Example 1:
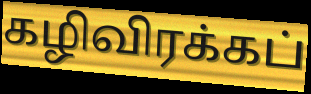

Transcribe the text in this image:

கழிவிரக்கப்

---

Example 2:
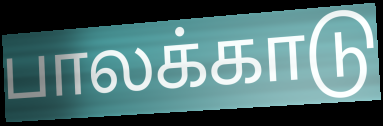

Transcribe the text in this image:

பாலக்காடு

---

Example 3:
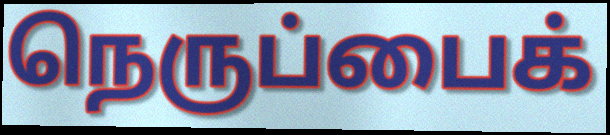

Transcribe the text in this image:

நெருப்பைக்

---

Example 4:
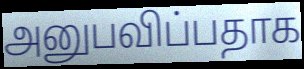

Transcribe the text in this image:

அனுபவிப்பதாக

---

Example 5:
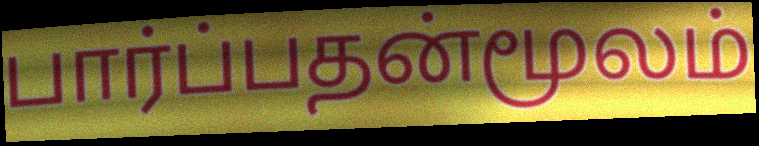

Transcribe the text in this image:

பார்ப்பதன்மூலம்